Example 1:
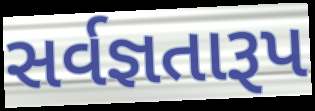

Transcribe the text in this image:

સર્વજ્ઞતારૂપ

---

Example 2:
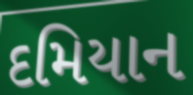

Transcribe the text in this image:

દમિયાન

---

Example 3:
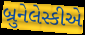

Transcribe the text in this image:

બ્રુનેલેસ્કીએ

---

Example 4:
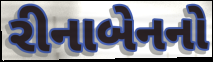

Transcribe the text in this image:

રીનાબેનનો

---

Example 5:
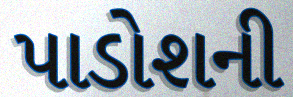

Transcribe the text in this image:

પાડોશની